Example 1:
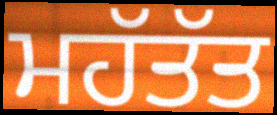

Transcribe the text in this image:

ਮਹੱਤੱਤ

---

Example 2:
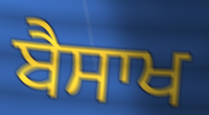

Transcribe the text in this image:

ਬੈਸਾਖ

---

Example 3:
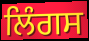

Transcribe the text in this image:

ਲਿੰਗਸ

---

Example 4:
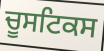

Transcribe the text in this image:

ਚੂਸਟਿਕਸ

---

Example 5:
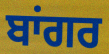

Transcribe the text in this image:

ਬਾਂਗਰ